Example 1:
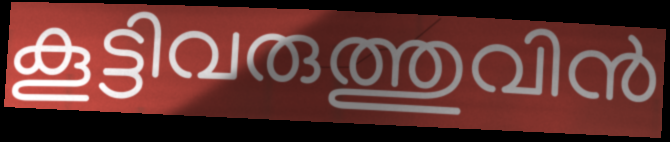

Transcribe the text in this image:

കൂട്ടിവരുത്തുവിൻ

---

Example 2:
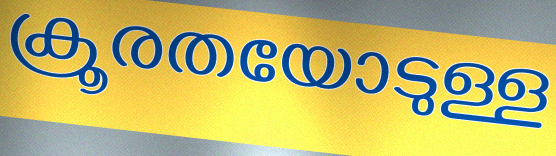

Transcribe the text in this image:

ക്രൂരതയോടുള്ള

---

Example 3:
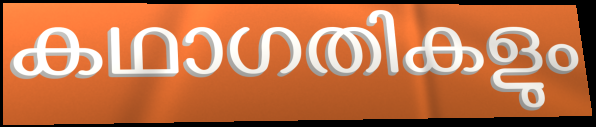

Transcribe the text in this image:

കഥാഗതികളും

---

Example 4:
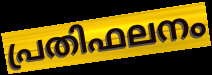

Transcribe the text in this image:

പ്രതിഫലനം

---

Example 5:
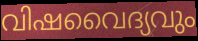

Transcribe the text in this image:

വിഷവൈദ്യവും